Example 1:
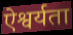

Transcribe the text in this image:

ऐश्वर्यता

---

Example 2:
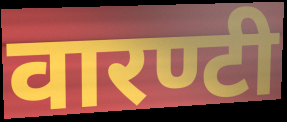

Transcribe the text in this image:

वारण्टी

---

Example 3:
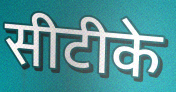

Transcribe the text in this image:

सीटीके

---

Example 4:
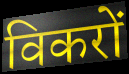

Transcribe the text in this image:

विकरों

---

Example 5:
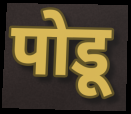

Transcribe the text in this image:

पोडू